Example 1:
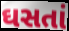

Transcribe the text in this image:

ઘસતાં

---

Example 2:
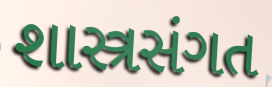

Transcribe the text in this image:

શાસ્ત્રસંગત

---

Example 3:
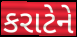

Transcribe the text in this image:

કરાટેને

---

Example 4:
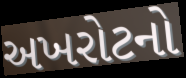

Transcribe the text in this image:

અખરોટનો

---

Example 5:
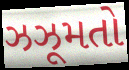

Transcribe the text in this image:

ઝઝૂમતો